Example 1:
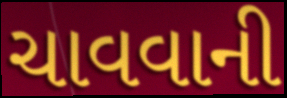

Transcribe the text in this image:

ચાવવાની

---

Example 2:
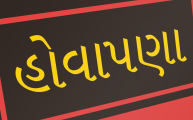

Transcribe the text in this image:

હોવાપણા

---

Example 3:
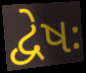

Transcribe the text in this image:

દ્વેષઃ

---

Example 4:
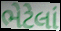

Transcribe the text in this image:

ભેટેલાં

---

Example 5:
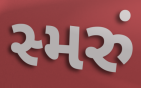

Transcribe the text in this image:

સ્મરું